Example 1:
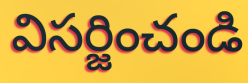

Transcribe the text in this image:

విసర్జించండి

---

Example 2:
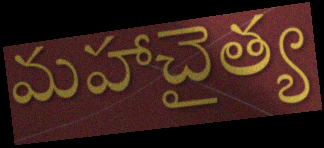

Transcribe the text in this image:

మహాచైత్య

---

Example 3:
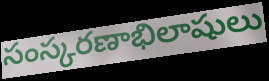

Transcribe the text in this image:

సంస్కరణాభిలాషులు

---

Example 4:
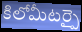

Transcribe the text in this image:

కిలోమీటర్పై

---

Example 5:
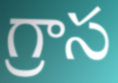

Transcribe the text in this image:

గ్రాస